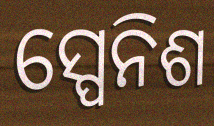
ସ୍ପେନିଶ